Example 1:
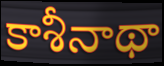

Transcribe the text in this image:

కాశీనాథా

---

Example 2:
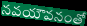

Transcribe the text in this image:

నవయౌవనంతో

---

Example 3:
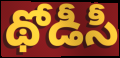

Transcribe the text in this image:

థోడీసీ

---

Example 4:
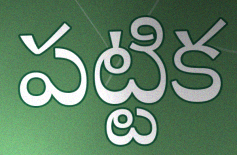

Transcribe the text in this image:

పట్టిక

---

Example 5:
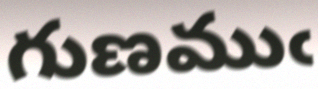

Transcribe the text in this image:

గుణముఁ